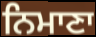
ਨਿਮਾਣਾ